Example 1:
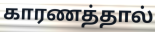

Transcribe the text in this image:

காரணத்தால்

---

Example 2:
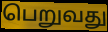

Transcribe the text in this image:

பெறுவது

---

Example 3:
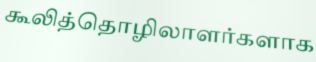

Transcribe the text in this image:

கூலித்தொழிலாளர்களாக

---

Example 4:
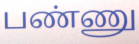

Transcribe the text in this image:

பண்ணு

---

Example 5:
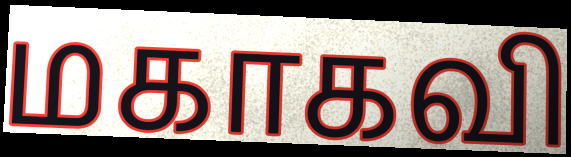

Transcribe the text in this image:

மகாகவி